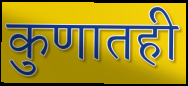
कुणातही